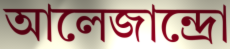
আলেজান্দ্রো